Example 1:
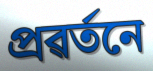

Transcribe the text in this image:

প্ৰৱৰ্তনে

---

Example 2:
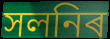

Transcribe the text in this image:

সলনিৰ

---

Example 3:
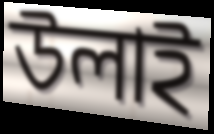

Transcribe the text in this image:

উলাই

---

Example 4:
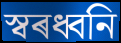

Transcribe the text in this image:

স্বৰধ্বনি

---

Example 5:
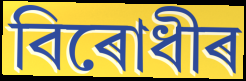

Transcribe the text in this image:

বিৰোধীৰ